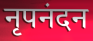
नृपनंदन